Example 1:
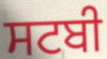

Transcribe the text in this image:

ਸਟਬੀ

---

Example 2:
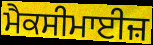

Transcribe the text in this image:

ਮੈਕਸੀਮਾਈਜ਼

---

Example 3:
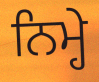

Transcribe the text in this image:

ਨਿਮ੍ਹੇ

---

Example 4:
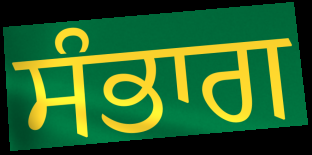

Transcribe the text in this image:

ਸੰਭਾਗ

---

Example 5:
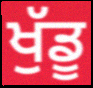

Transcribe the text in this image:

ਖੁੱਡੂ